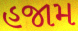
હજામ